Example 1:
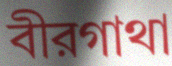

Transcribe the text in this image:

বীরগাথা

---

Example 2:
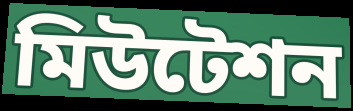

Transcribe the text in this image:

মিউটেশন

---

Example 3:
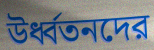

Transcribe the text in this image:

উর্ধ্বতনদের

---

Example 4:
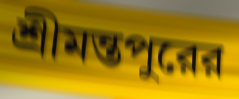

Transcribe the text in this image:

শ্রীমন্তপুরের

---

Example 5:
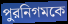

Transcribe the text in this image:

পুরনিগমকে